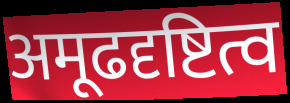
अमूढदृष्टित्व